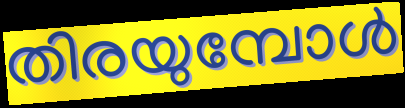
തിരയുമ്പോൾ